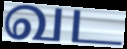
வட